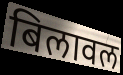
बिलावल